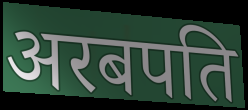
अरबपति